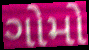
ગોમો